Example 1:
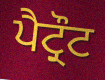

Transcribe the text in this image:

ਪੈਟ੍ਰੌਟ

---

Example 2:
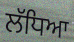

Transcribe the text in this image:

ਲੱਧਿਆ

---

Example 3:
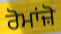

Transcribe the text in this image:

ਰੋਮਾਂਜ਼ੋ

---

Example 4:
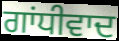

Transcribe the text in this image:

ਗਾਂਧੀਵਾਦ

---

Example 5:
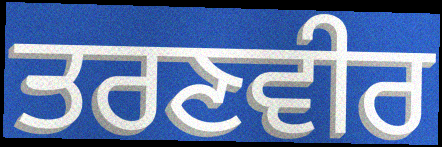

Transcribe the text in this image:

ਤਰਣਵੀਰ